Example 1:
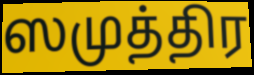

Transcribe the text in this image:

ஸமுத்திர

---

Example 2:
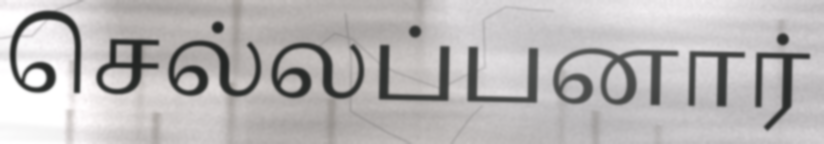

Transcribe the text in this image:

செல்லப்பனார்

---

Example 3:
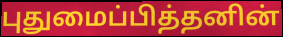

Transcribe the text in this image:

புதுமைப்பித்தனின்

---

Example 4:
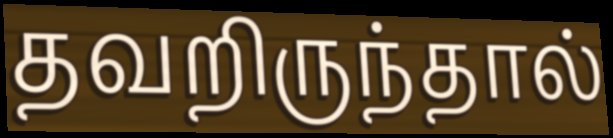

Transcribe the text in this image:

தவறிருந்தால்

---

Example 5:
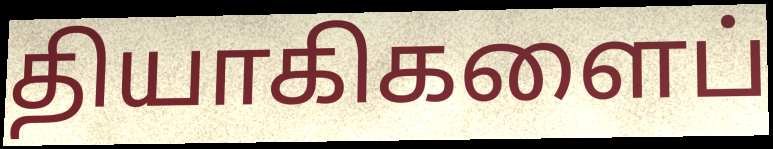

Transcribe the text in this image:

தியாகிகளைப்